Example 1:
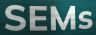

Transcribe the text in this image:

SEMs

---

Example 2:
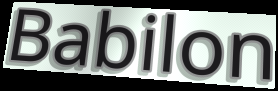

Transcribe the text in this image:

Babilon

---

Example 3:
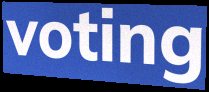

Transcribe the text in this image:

voting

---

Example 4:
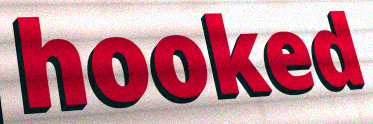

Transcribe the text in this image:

hooked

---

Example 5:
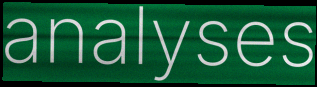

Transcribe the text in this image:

analyses